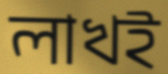
লাখই